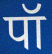
पॉ